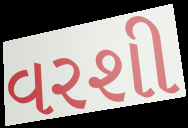
વરશી